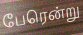
பேரென்று